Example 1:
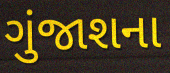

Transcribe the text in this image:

ગુંજાશના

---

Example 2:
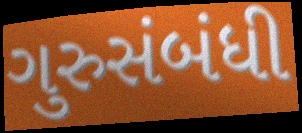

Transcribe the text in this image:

ગુરુસંબંધી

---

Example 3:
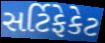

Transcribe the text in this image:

સર્ટિફેકેટ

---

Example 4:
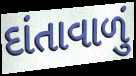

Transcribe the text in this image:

દાંતાવાળું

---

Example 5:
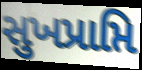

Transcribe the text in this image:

સુખપ્રાપ્તિ